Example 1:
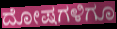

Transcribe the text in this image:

ದೋಷಗಳಿಗೂ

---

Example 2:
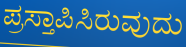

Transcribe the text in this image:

ಪ್ರಸ್ತಾಪಿಸಿರುವುದು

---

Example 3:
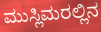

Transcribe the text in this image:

ಮುಸ್ಲಿಮರಲ್ಲಿನ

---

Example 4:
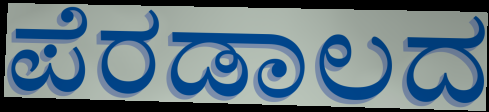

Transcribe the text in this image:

ಪೆರಡಾಲದ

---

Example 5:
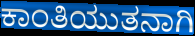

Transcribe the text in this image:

ಕಾಂತಿಯುತನಾಗಿ